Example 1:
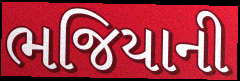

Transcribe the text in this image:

ભજિયાની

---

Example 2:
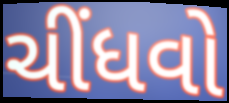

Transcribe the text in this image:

ચીંધવો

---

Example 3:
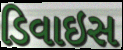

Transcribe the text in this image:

ડિવાઇસ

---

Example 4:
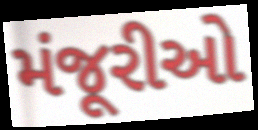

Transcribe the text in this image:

મંજૂરીઓ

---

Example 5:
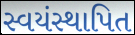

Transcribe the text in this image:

સ્વયંસ્થાપિત